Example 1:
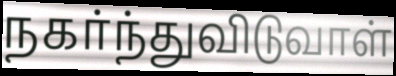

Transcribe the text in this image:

நகர்ந்துவிடுவாள்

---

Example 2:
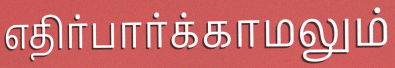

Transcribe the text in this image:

எதிர்பார்க்காமலும்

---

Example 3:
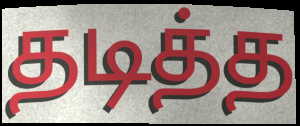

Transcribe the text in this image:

தடித்த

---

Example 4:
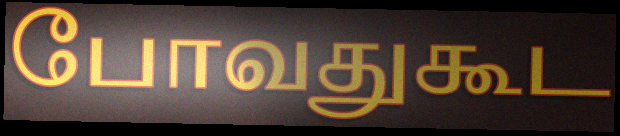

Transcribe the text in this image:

போவதுகூட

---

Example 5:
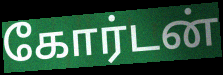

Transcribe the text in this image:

கோர்டன்